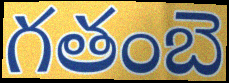
గతంబె